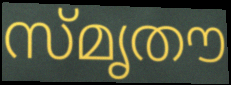
സ്മൃതൗ